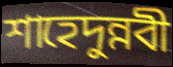
শাহেদুন্নবী